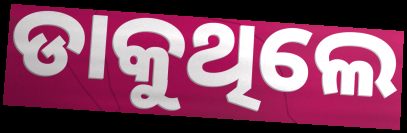
ଡାକୁଥିଲେ